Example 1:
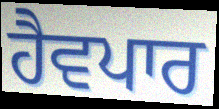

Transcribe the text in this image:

ਹੈਵਪਾਰ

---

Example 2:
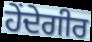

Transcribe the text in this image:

ਹੇਂਦੇਗੀਰ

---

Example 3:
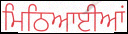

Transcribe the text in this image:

ਮਿਠਿਆਈਆਂ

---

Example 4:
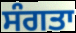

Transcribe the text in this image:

ਸੰਗਤਾ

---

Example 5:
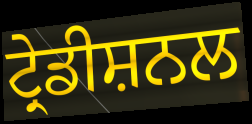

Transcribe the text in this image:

ਟ੍ਰੇਡੀਸ਼ਨਲ